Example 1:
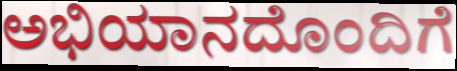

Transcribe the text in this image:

ಅಭಿಯಾನದೊಂದಿಗೆ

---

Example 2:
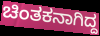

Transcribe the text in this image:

ಚಿಂತಕನಾಗಿದ್ದ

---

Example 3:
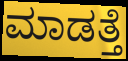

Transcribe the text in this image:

ಮಾಡತ್ತೆ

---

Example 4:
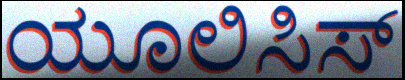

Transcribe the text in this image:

ಯೂಲಿಸಿಸ್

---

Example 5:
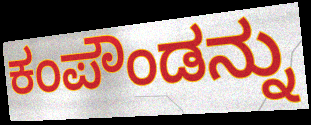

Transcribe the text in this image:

ಕಂಪೌಂಡನ್ನು